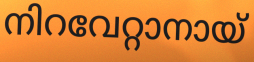
നിറവേറ്റാനായ്